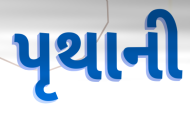
પૃથાની